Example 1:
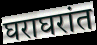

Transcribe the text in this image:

घराघरांत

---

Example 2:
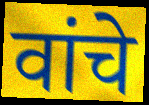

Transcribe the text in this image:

वांचे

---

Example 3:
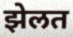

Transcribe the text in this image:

झेलत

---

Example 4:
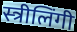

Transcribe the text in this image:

स्त्रीलिंगी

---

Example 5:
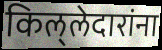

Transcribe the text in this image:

किल्लेदारांना